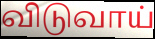
விடுவாய்